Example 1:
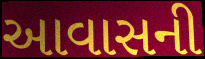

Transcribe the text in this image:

આવાસની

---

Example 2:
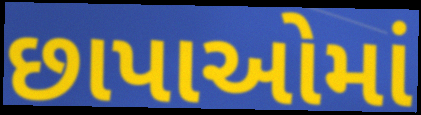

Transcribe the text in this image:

છાપાઓમાં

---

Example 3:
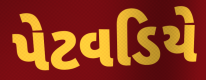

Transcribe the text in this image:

પેટવડિયે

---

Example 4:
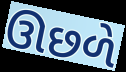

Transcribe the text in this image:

ઊછળે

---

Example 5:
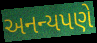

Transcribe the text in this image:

અનન્યપણે